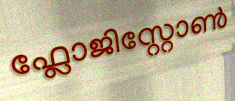
ഫ്ലോജിസ്റ്റോൺ